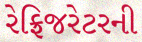
રેફ્રિજરેટરની